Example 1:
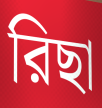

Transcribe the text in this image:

রিছা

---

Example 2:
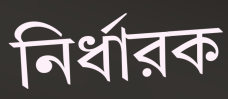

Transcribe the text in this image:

নির্ধারক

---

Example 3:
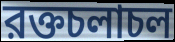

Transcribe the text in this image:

রক্তচলাচল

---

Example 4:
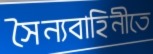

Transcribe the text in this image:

সৈন্যবাহিনীতে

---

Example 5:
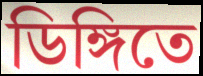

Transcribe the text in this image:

ডিঙ্গিতে